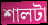
শালটা